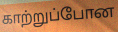
காற்றுப்போன